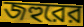
জহুরের